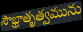
సౌభ్రాతృత్వమును